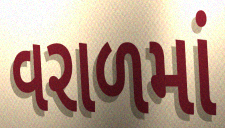
વરાળમાં